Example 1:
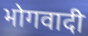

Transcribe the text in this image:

भोगवादी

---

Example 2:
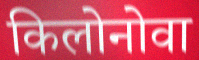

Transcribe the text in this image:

किलोनोवा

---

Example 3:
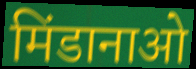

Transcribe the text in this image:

मिंडानाओ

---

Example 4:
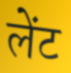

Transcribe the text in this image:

लेंट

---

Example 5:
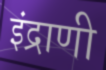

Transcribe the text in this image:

इंद्राणी